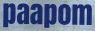
paapom